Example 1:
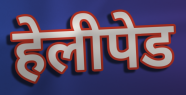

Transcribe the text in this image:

हेलीपेड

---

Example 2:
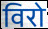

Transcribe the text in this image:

विरो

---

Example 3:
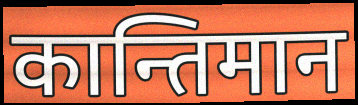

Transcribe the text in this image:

कान्तिमान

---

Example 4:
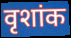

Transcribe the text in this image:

वृशांक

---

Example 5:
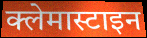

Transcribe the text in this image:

क्लेमास्टाइन